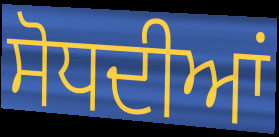
ਸੋਧਦੀਆਂ